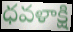
ధవళాక్షి